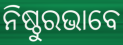
ନିଷ୍ଠୁରଭାବେ